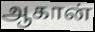
ஆகான்